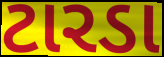
ટારડા